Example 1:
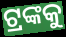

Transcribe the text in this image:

ଟ୍ରଙ୍କକୁ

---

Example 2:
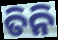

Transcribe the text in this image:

ତିନି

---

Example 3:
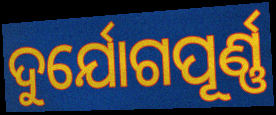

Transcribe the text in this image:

ଦୁର୍ଯୋଗପୂର୍ଣ୍ଣ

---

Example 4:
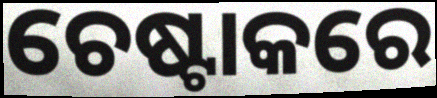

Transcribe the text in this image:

ଚେଷ୍ଟାକରେ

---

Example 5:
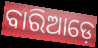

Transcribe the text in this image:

ବାରିଆଡ଼େ